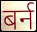
बर्न